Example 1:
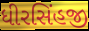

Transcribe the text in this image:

ધીરસિંહજી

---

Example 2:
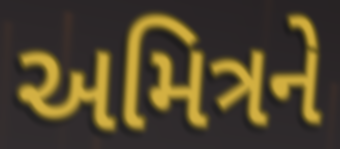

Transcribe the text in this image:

અમિત્રને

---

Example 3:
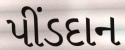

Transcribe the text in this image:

પીંડદાન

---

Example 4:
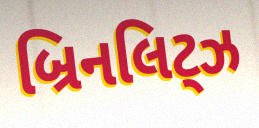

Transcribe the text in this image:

બ્રિનલિટ્ઝ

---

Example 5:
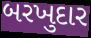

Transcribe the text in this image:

બરખુદાર